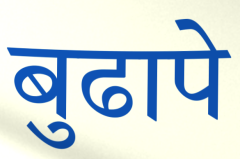
बुढापे